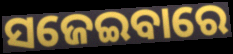
ସଜେଇବାରେ